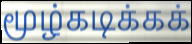
மூழ்கடிக்கக்